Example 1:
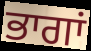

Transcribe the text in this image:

ਭਾਗਾਂ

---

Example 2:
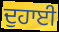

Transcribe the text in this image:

ਦੁਹਾਈ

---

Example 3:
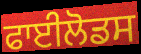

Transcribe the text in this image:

ਫਾਈਲੋਡਸ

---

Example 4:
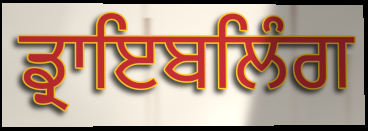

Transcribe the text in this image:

ਡ੍ਰਾਇਬਲਿੰਗ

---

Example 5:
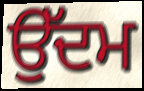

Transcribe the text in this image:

ਉੱਦਮ